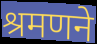
श्रमणने